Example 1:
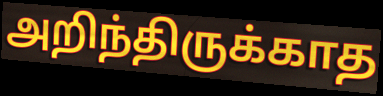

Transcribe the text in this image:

அறிந்திருக்காத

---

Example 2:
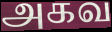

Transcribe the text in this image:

அகவ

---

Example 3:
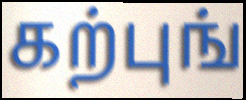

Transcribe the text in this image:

கற்புங்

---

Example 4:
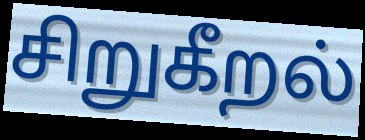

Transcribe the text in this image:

சிறுகீறல்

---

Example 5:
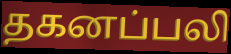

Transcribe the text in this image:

தகனப்பலி